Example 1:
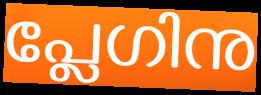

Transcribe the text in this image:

പ്ലേഗിനു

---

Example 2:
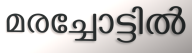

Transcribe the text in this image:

മരച്ചോട്ടിൽ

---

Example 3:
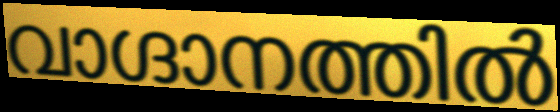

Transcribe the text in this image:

വാഗ്ദാനത്തിൽ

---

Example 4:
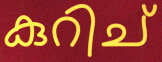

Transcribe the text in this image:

കുറിച്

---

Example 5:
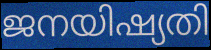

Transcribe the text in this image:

ജനയിഷ്യതി